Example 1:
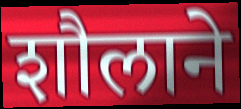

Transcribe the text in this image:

शौलाने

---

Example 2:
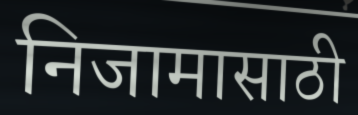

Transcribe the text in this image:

निजामासाठी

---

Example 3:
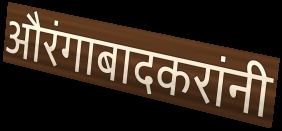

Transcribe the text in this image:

औरंगाबादकरांनी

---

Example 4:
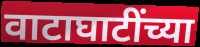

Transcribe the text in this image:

वाटाघाटींच्या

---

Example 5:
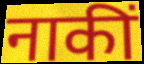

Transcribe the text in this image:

नाकीं